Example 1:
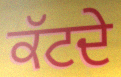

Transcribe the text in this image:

ਕੱਟਦੇ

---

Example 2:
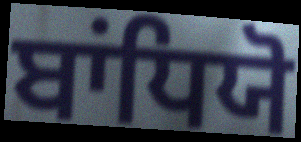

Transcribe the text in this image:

ਬਾਂਧਿਯੋ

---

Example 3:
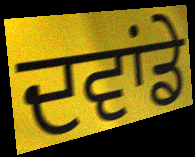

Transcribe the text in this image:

ਦਵਾਂਡੇ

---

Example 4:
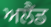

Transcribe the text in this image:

ਅਲੈਂਡ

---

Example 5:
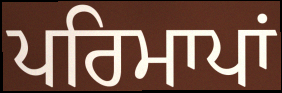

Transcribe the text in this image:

ਪਰਿਮਾਪਾਂ